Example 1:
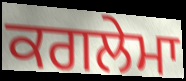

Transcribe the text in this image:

ਕਗਲੇਮਾ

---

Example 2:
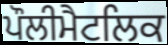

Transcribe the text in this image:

ਪੌਲੀਮੈਟਲਿਕ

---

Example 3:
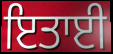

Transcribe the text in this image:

ਇਤਾਈ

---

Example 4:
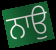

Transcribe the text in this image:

ਨਾਉ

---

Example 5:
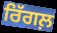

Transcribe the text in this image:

ਰਿੱਗਲ਼